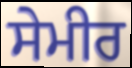
ਸੇਮੀਰ